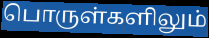
பொருள்களிலும்